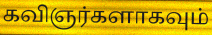
கவிஞர்களாகவும்